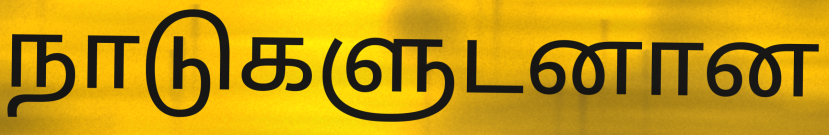
நாடுகளுடனான